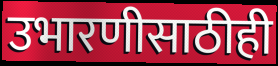
उभारणीसाठीही